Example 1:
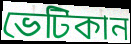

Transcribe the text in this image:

ভেটিকান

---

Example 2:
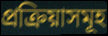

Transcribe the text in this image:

প্ৰক্ৰিয়াসমূহ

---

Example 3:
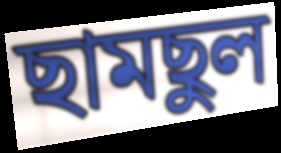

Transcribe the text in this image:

ছামছুল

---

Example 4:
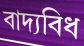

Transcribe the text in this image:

বাদ্যবিধ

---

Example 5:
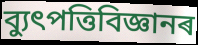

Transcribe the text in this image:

ব্যুৎপত্তিবিজ্ঞানৰ